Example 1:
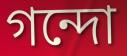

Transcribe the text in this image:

গন্দো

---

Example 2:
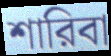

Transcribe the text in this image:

শারিবা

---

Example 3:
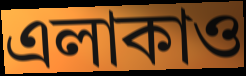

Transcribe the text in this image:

এলাকাও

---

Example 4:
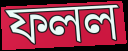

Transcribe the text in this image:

ফলল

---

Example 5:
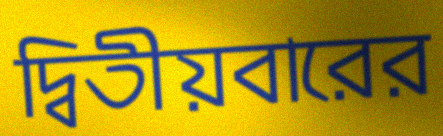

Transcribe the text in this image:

দ্বিতীয়বারের